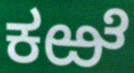
ಕಱೆ